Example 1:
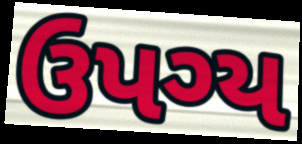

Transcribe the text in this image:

ઉપગ્ય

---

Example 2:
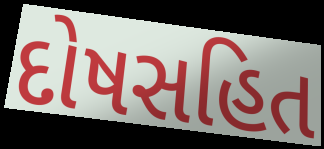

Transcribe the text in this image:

દોષસહિત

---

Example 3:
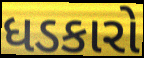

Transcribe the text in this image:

ધડકારો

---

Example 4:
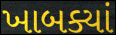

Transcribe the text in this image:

ખાબક્યાં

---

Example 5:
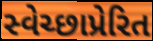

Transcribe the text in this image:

સ્વેચ્છાપ્રેરિત